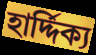
হার্দ্দিক্য